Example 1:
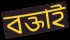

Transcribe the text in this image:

বক্তাই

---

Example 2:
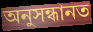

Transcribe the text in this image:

অনুসন্ধানত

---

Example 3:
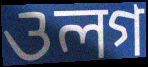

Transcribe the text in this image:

ওলগ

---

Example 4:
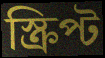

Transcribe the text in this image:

স্ক্ৰিপ্ট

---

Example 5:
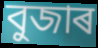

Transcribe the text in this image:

বুজাৰ